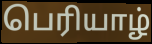
பெரியாழ்